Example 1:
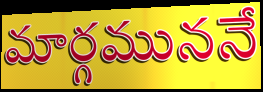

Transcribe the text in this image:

మార్గముననే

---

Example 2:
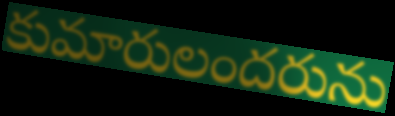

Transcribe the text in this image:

కుమారులందరును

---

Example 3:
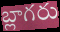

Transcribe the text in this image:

బ్లాగరు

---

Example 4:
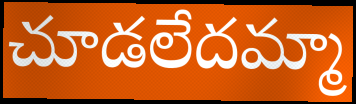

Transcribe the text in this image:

చూడలేదమ్మా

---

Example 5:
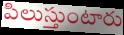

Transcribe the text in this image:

పిలుస్తుంటారు